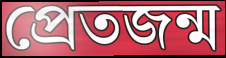
প্রেতজন্ম